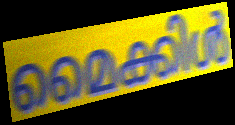
മൈക്കിൾ